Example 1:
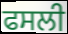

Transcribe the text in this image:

ਫਸਲੀ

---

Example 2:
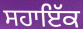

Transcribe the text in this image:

ਸਹਾਇੱਕ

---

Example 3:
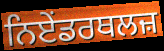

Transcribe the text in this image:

ਨਿਏਂਡਰਥਲਜ਼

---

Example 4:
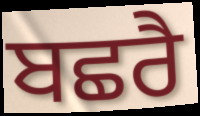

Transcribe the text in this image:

ਬਛਰੈ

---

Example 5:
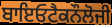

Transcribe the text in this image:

ਬਾਇਓਟੈਕਨੌਲੋਜੀ